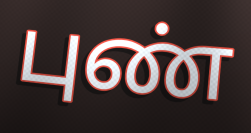
புண்